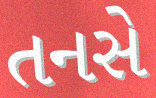
તનસે